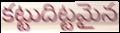
కట్టుదిట్టమైన